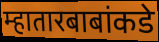
म्हातारबाबांकडे